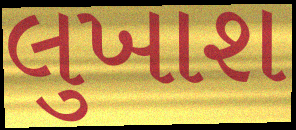
લુખાશ